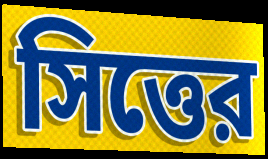
সিত্তের